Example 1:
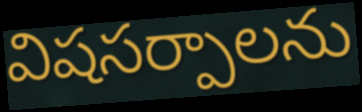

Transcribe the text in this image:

విషసర్పాలను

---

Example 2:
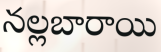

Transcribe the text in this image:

నల్లబారాయి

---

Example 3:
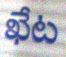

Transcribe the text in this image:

ఖేట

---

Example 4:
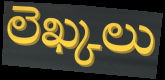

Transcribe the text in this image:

లెఖ్కలు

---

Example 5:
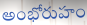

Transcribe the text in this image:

అంభోరుహం